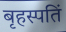
बृहस्पतिं